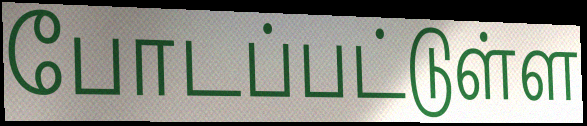
போடப்பட்டுள்ள